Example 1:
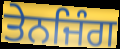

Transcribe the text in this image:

ਤੇਨਜਿੰਗ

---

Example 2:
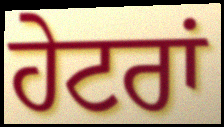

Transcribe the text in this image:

ਹੇਟਰਾਂ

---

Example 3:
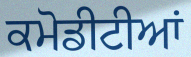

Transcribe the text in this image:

ਕਮੋਡੀਟੀਆਂ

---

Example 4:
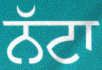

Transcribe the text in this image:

ਨੱਟਾ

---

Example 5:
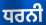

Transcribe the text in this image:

ਧਰਨੀ